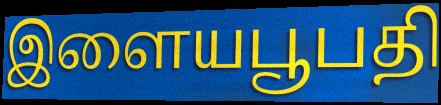
இளையபூபதி